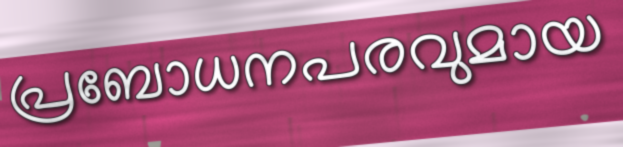
പ്രബോധനപരവുമായ